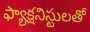
ఫ్యాక్షనిస్టులతో